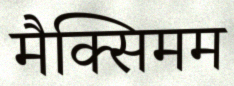
मैक्सिमम